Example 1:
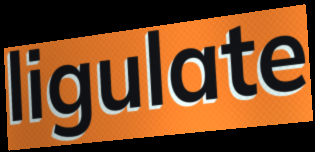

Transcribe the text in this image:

ligulate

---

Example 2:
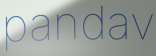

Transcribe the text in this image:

pandav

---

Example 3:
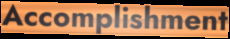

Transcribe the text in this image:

Accomplishment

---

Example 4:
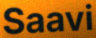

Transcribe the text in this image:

Saavi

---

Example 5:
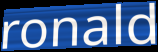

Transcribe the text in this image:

ronald